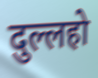
दुल्लहो